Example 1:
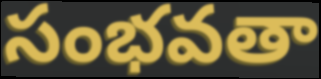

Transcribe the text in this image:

సంభవతా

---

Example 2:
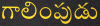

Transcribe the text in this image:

గాలింపుడు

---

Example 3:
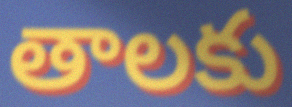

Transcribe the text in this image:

తాలకు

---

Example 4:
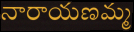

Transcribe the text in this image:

నారాయణమ్మ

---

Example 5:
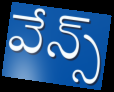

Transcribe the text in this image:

వేన్స్